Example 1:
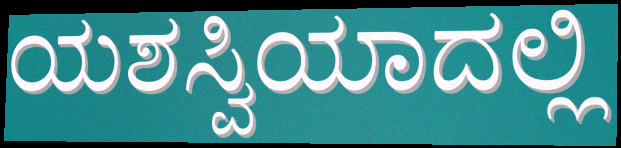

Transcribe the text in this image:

ಯಶಸ್ವಿಯಾದಲ್ಲಿ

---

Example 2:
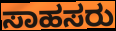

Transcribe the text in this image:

ಸಾಹಸರು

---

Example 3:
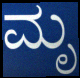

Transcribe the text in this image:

ಮೃ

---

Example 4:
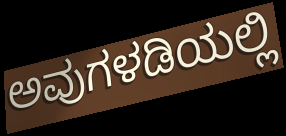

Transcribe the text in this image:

ಅವುಗಳಡಿಯಲ್ಲಿ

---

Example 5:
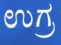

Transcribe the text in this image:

ಉಗ್ರ